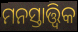
ମନସ୍ତାତ୍ତ୍ବିକ